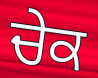
ਚੇਕ